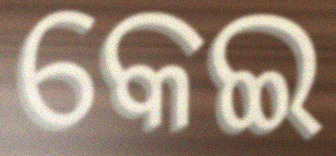
କେଇ